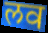
लव